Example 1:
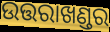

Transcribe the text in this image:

ଉତ୍ତରାଖଣ୍ଡର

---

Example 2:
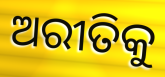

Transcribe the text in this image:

ଅରୀତିକୁ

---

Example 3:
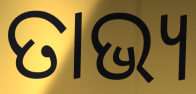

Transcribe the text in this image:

ତାଭ୍ୟ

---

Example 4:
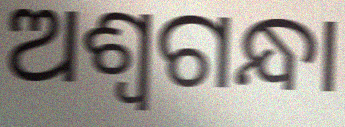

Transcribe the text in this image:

ଅଶ୍ୱଗନ୍ଧା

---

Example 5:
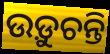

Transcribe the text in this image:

ଉଡ଼ୁଚନ୍ତି